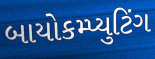
બાયોકમ્પ્યુટિંગ